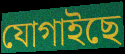
যোগাইছে